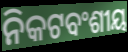
ନିକଟବଂଶୀୟ